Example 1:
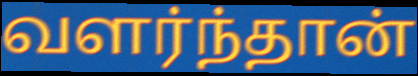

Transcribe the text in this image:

வளர்ந்தான்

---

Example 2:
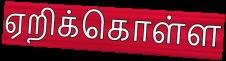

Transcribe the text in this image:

ஏறிக்கொள்ள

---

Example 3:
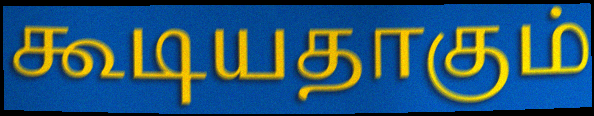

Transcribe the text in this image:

கூடியதாகும்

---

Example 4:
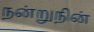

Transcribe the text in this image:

நன்றுநின்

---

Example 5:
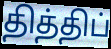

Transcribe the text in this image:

தித்திப்